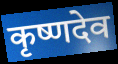
कृष्णदेव